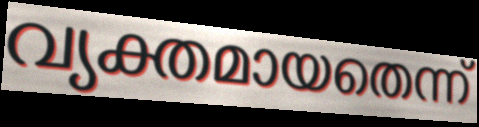
വ്യക്തമായതെന്ന്